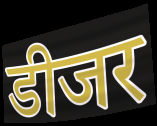
डीजर